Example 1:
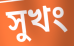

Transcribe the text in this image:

সুখং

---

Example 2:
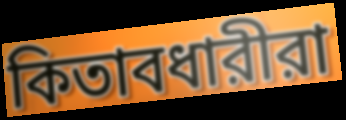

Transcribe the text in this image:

কিতাবধারীরা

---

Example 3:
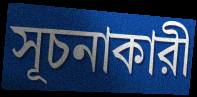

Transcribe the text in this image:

সূচনাকারী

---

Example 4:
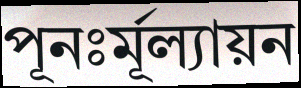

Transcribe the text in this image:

পূনঃর্মূল্যায়ন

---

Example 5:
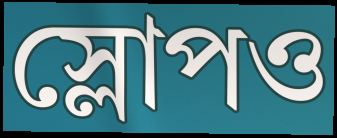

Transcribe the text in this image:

স্লোপও